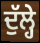
ਦੁੱਲ੍ਹੇ